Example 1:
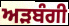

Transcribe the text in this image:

ਅੜਬੰਗੀ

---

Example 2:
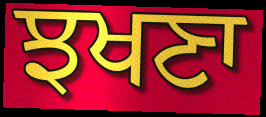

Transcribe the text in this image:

ਝਖਣਾ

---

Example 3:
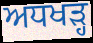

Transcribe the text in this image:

ਅਧਖੜ੍ਹ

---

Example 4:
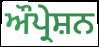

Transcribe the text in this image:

ਔਪ੍ਰੇਸ਼ਨ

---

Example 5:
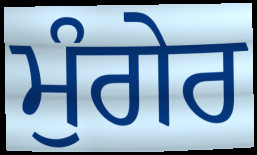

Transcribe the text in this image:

ਮੁੰਗੇਰ